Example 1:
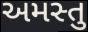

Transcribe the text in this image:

અમસ્તુ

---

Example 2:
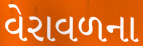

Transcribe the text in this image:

વેરાવળના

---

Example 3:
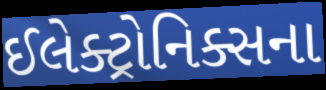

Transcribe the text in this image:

ઈલેક્ટ્રોનિક્સના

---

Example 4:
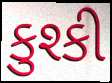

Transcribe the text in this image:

કુશ્કી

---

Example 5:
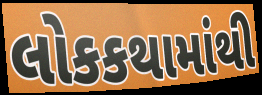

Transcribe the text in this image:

લોકકથામાંથી